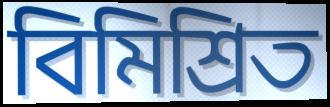
বিমিশ্রিত